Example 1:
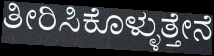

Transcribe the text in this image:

ತೀರಿಸಿಕೊಳ್ಳುತ್ತೇನೆ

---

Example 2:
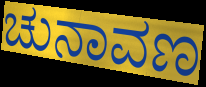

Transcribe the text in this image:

ಚುನಾವಣ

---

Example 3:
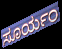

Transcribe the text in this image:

ಸೂರ್ಯಂ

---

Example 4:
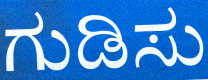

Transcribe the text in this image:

ಗುಡಿಸು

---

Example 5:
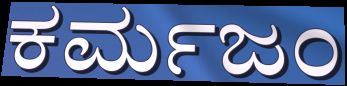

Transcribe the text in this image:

ಕರ್ಮಜಂ